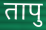
तापु